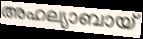
അഹല്യാബായ്